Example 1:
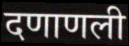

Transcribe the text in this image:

दणाणली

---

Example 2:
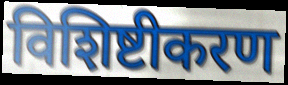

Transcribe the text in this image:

विशिष्टीकरण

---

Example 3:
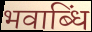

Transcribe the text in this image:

भवाब्धिं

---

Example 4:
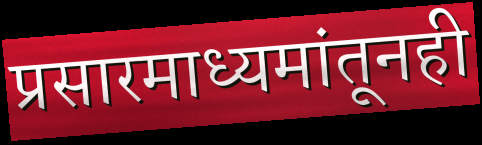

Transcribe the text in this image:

प्रसारमाध्यमांतूनही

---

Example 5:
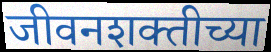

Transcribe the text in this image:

जीवनशक्तीच्या